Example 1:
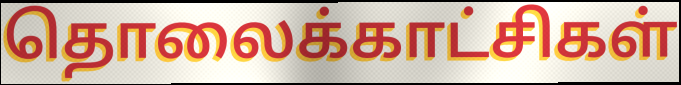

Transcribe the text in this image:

தொலைக்காட்சிகள்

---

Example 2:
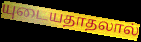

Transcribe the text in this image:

யுடையதாதலால்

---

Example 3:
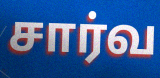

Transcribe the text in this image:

சார்வ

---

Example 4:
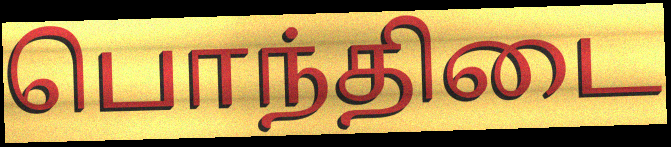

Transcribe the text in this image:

பொந்திடை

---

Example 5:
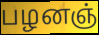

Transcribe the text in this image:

பழனஞ்